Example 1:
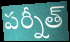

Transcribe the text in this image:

పర్నీత్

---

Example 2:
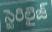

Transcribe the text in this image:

స్టెరిలైజ్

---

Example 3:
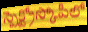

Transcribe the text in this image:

స్పెక్ట్రోస్కోపీలో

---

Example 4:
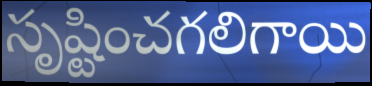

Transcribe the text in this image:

సృష్టించగలిగాయి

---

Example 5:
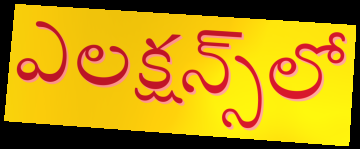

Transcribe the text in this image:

ఎలక్షన్స్‌లో